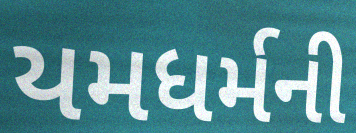
યમધર્મની